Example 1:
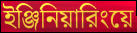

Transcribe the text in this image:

ইঞ্জিনিয়ারিংয়ে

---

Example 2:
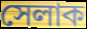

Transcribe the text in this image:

সেলাক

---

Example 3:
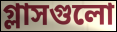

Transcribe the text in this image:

গ্লাসগুলো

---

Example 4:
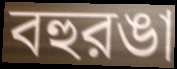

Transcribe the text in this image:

বহুরঙা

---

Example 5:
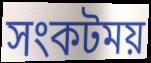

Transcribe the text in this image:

সংকটময়